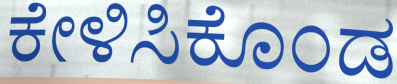
ಕೇಳಿಸಿಕೊಂಡ